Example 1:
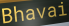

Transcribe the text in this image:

Bhavai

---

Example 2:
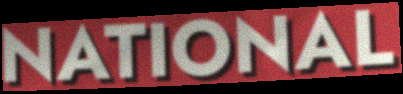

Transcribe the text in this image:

NATIONAL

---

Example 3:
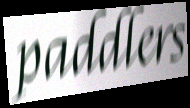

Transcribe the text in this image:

paddlers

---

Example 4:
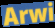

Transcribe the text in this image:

Arwi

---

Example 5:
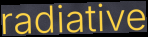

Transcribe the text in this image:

radiative